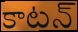
కాటన్